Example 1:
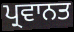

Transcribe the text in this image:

ਪ੍ਰਵਾਨਤ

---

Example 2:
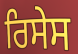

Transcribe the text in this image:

ਰਿਸੇਸ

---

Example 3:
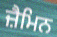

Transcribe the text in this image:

ਜ਼ੈਮਿਨ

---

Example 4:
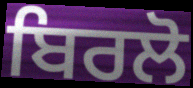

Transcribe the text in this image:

ਬਿਰਲੋ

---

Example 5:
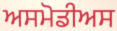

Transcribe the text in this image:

ਅਸਮੋਡੀਅਸ